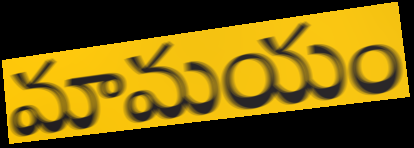
మామయం